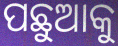
ପଛୁଆକୁ